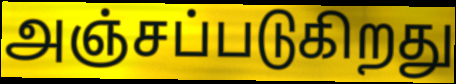
அஞ்சப்படுகிறது